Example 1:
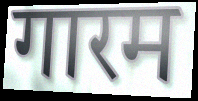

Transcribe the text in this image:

गारम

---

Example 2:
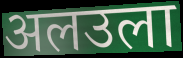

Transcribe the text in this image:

अलउला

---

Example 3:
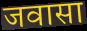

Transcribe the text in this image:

जवासा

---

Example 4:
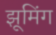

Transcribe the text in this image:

झूमिंग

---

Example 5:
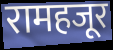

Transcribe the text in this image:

रामहजूर